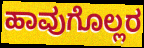
ಹಾವುಗೊಲ್ಲರ